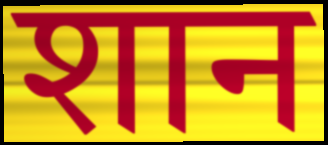
शान